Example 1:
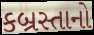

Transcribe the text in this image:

કબ્રસ્તાનો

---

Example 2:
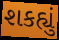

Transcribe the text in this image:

શકહ્યું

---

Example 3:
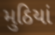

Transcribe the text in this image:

મુઠિયાં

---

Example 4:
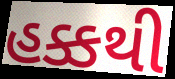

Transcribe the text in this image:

હક્કથી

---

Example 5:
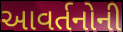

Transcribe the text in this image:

આવર્તનોની